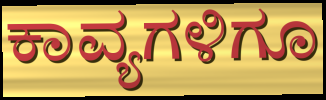
ಕಾವ್ಯಗಳಿಗೂ